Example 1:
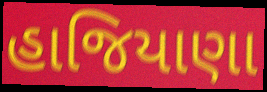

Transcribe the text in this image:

હાજિયાણા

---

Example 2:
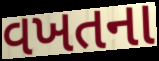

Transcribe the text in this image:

વખતના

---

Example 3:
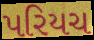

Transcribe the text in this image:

પરિયચ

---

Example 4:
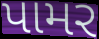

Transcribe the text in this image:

પામર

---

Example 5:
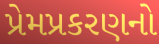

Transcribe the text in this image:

પ્રેમપ્રકરણનો